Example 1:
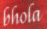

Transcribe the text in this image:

bhola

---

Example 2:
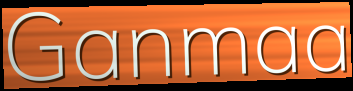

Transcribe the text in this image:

Ganmaa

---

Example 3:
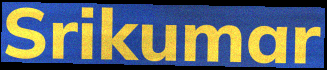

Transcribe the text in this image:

Srikumar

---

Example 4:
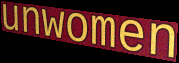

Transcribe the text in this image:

unwomen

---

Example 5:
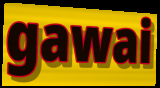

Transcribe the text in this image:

gawai